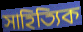
সাহিত্যিক